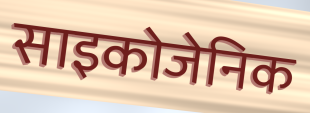
साइकोजेनिक